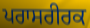
ਪਰਾਸਰੀਰਕ